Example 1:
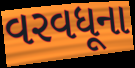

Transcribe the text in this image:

વરવધૂના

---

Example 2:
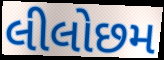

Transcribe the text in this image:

લીલોછમ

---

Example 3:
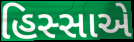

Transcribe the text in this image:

હિસ્સાએ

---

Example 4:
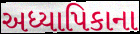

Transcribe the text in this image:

અધ્યાપિકાના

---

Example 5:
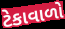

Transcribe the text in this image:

ટેકાવાળો